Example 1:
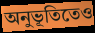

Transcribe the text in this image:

অনুভূতিতেও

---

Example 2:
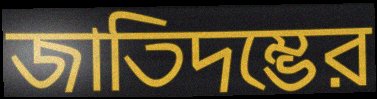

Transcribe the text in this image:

জাতিদম্ভের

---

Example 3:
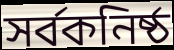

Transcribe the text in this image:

সর্বকনিষ্ঠ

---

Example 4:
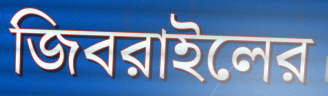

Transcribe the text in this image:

জিবরাইলের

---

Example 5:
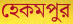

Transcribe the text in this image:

হেকমপুর